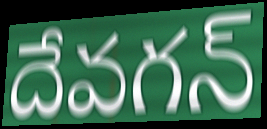
దేవగన్